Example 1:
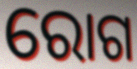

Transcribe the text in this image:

ରୋଗ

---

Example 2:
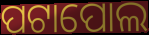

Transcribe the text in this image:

ପଟାପୋଲ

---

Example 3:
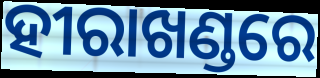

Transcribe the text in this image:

ହୀରାଖଣ୍ଡରେ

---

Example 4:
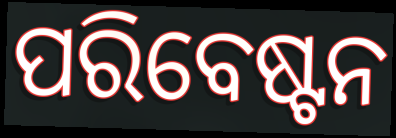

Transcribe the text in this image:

ପରିବେଷ୍ଟନ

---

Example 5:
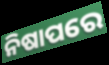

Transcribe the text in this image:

ନିଷାପରେ